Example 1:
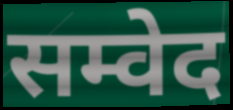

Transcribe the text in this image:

सम्वेद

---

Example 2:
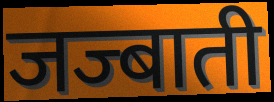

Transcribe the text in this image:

जज्‍बाती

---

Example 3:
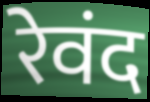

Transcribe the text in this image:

रेवंद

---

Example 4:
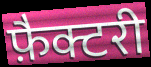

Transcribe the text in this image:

फ़ैक्टरी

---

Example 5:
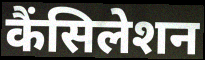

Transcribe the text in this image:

कैंसिलेशन